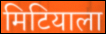
मिटियाला